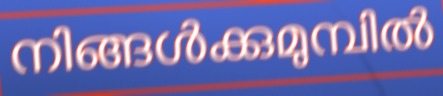
നിങ്ങൾക്കുമുമ്പിൽ